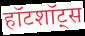
हॉटशॉट्स